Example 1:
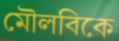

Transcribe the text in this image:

মৌলবিকে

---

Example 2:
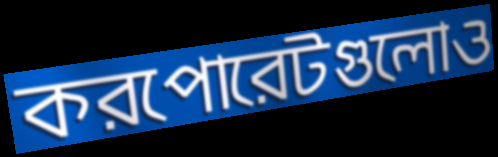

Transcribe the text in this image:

করপোরেটগুলোও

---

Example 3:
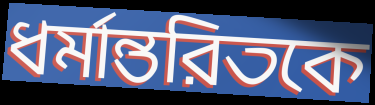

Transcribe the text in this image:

ধর্মান্তরিতকে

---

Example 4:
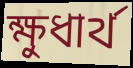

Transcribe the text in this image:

ক্ষুধার্থ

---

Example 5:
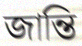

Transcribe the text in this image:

জান্তি